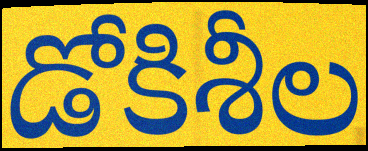
డోకిశీల